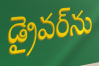
డ్రైవర్‌ను